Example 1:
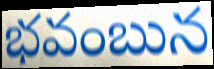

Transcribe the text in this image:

భవంబున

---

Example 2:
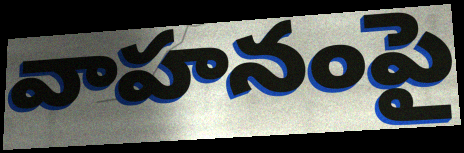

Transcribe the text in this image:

వాహనంపై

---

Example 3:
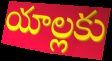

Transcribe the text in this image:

యాల్లకు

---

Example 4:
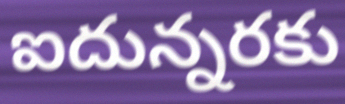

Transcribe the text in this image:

ఐదున్నరకు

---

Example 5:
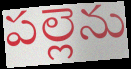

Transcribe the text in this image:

పల్లెను